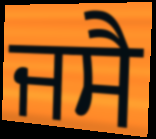
ਜਸੈ